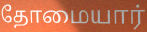
தோமையார்